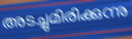
അടച്ചുമിരിക്കുന്നു